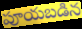
పూయబడిన